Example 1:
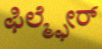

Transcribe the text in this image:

ಫಿಲ್ಮ್ಫೇರ್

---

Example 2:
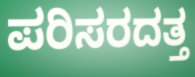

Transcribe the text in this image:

ಪರಿಸರದತ್ತ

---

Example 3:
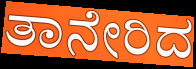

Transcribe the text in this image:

ತಾನೇರಿದ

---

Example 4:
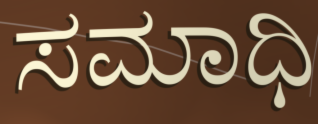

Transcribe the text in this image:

ಸಮಾಧಿ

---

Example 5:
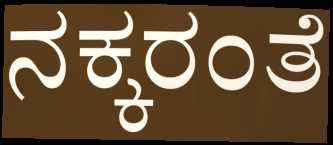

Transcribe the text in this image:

ನಕ್ಕರಂತೆ